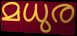
മധുര